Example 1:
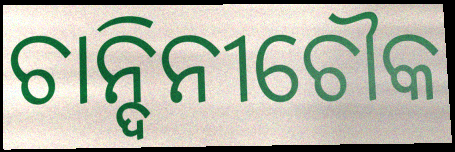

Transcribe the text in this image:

ଚାନ୍ଦିନୀଚୌକ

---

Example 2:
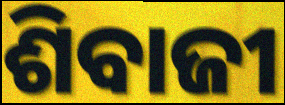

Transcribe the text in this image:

ଶିବାଜୀ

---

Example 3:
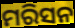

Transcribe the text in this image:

ମରିସନ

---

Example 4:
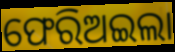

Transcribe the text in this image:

ଫେରିଅଇଲା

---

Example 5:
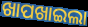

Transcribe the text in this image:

ଖାପଖାଇଲା